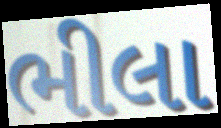
ભીલા